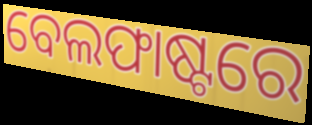
ବେଲଫାଷ୍ଟରେ